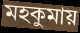
মহকুমায়